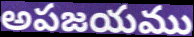
అపజయము